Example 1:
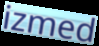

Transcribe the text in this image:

izmed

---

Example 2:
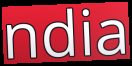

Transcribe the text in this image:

ndia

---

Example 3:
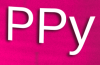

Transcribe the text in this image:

PPy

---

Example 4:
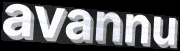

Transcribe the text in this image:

avannu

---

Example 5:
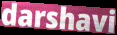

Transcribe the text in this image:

darshavi